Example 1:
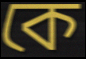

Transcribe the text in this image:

কে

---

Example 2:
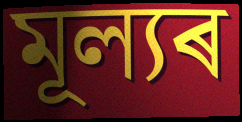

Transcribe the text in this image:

মূল্যৰ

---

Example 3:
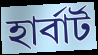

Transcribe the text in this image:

হাৰ্বাৰ্ট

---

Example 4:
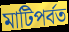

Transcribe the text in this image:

মাটিপৰ্বত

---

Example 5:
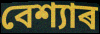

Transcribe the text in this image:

বেশ্যাৰ